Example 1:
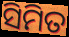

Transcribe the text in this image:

ସିମିତ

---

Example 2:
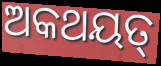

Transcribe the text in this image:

ଅକଥୟତ୍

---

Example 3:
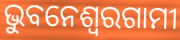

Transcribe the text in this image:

ଭୁବନେଶ୍ୱରଗାମୀ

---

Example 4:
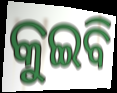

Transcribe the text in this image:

କୁଇବି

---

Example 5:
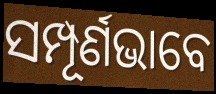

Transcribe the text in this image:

ସମ୍ପୂର୍ଣଭାବେ